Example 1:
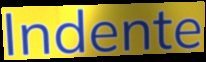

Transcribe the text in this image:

Indente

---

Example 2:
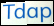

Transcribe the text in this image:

Tdap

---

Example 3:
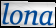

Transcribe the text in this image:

lona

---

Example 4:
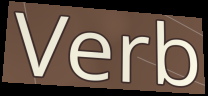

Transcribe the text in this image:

Verb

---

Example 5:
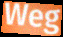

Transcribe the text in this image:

Weg